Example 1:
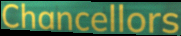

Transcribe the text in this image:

Chancellors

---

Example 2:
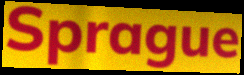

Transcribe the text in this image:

Sprague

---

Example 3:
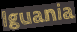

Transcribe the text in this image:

Iguania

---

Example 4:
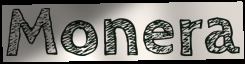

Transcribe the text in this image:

Monera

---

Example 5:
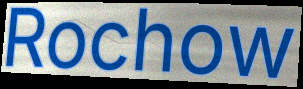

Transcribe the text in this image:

Rochow